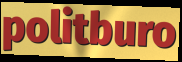
politburo